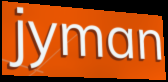
jyman